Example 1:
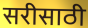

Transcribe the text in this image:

सरीसाठी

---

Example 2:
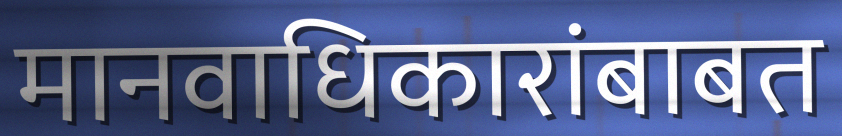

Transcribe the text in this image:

मानवाधिकारांबाबत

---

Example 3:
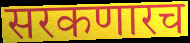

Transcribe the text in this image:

सरकणारच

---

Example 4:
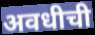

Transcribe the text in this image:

अवधीची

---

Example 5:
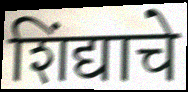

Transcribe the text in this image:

शिंद्याचे